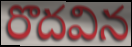
రొదవిన